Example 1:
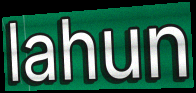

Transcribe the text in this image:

lahun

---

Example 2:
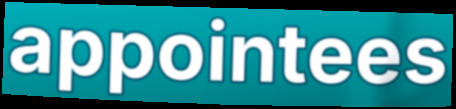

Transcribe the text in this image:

appointees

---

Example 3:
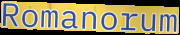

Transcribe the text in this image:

Romanorum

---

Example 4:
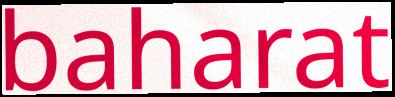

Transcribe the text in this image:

baharat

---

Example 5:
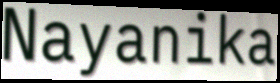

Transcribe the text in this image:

Nayanika